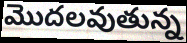
మొదలవుతున్న